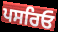
ਪਸਰਿਓ